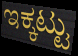
ಇಕ್ಕಟ್ಟು